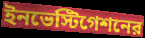
ইনভেস্টিগেশনের